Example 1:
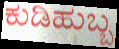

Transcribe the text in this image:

ಕುಡಿಹುಬ್ಬ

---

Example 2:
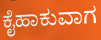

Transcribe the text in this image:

ಕೈಹಾಕುವಾಗ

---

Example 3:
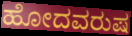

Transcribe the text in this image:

ಹೋದವರುಷ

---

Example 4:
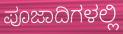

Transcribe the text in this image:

ಪೂಜಾದಿಗಳಲ್ಲಿ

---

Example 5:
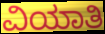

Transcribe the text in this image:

ವಿಯಾತಿ